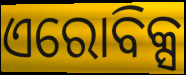
ଏରୋବିକ୍ସ